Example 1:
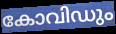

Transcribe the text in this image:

കോവിഡും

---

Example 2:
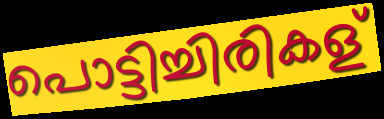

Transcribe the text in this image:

പൊട്ടിച്ചിരികള്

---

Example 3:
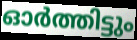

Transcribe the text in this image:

ഓർത്തിട്ടും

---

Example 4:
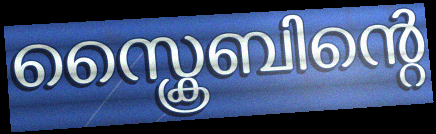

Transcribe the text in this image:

സ്ക്രൈബിന്റെ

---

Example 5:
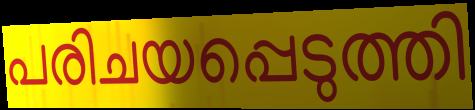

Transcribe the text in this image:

പരിചയപ്പെടുത്തി